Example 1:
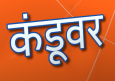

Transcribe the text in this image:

कंडूवर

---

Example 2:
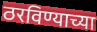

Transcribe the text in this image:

ठरविण्याच्या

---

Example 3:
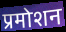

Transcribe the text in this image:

प्रमोशन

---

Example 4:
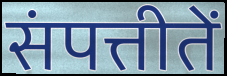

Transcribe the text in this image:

संपत्तीतें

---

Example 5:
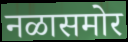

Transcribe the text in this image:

नळासमोर